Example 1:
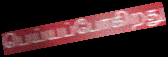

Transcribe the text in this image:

பெய்யப்போகிறது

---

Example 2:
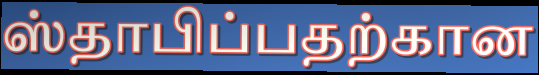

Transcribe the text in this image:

ஸ்தாபிப்பதற்கான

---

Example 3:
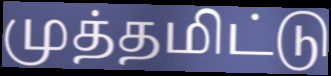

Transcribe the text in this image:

முத்தமிட்டு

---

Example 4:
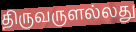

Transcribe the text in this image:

திருவருளல்லது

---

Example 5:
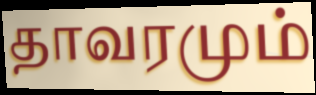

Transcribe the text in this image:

தாவரமும்